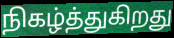
நிகழ்த்துகிறது